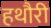
हथौरी